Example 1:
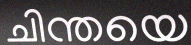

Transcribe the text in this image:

ചിന്തയെ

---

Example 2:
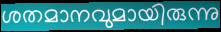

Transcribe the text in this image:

ശതമാനവുമായിരുന്നു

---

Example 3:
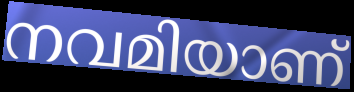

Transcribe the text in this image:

നവമിയാണ്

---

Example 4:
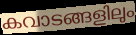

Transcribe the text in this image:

കവാടങ്ങളിലും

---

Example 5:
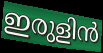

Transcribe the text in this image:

ഇരുളിൻ